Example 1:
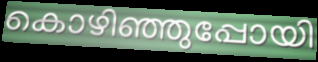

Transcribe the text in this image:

കൊഴിഞ്ഞുപ്പോയി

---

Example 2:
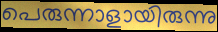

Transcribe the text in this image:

പെരുന്നാളായിരുന്നു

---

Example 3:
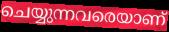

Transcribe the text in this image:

ചെയ്യുന്നവരെയാണ്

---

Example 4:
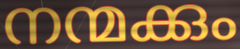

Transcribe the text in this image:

നന്മക്കും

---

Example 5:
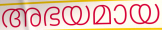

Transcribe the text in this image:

അഭയമായ